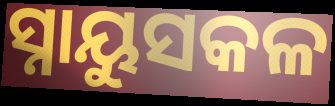
ସ୍ନାୟୁସକଳ